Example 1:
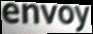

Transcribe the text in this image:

envoy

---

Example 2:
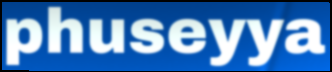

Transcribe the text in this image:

phuseyya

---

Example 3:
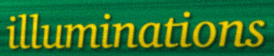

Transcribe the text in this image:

illuminations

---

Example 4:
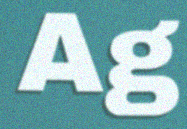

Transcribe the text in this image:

Ag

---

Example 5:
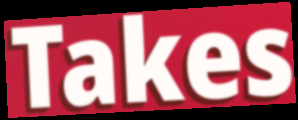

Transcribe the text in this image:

Takes